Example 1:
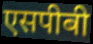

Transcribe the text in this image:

एसपीबी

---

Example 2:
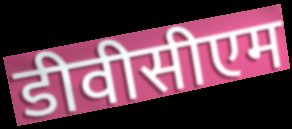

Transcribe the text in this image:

डीवीसीएम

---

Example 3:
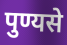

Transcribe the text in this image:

पुण्यसे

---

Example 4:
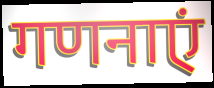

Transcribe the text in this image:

गणनाएं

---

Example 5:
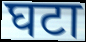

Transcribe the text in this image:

घटा